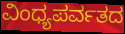
ವಿಂಧ್ಯಪರ್ವತದ